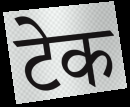
टेक